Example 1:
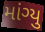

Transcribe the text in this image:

માંગ્યુ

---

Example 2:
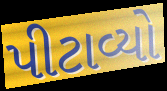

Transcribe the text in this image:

પીટાવ્યો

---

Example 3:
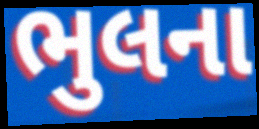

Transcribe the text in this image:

ભુલના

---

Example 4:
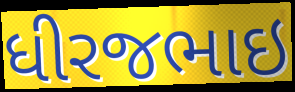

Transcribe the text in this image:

ધીરજભાઇ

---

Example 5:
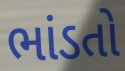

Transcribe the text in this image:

ભાંડતો